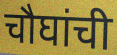
चौघांची